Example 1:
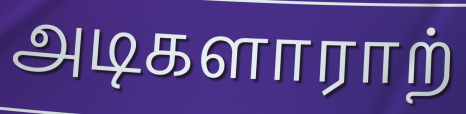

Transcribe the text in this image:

அடிகளாராற்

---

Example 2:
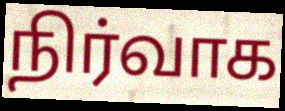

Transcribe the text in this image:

நிர்வாக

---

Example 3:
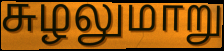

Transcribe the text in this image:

சுழலுமாறு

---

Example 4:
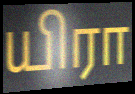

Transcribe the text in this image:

யிரா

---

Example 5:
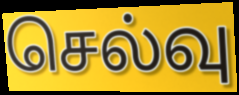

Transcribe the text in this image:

செல்வு